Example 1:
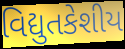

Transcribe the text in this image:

વિદ્યુતકેશીય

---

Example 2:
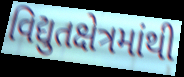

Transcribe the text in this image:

વિદ્યુતક્ષેત્રમાંથી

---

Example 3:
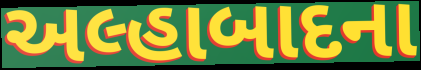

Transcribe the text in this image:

અલ્હાબાદના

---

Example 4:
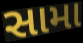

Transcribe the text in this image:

સામા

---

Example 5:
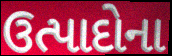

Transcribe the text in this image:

ઉત્પાદોના